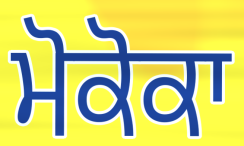
ਮੋਕੋਕਾ